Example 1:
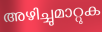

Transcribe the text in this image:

അഴിച്ചുമാറ്റുക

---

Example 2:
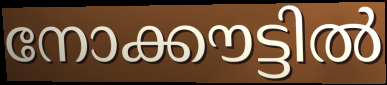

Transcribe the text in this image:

നോക്കൗട്ടിൽ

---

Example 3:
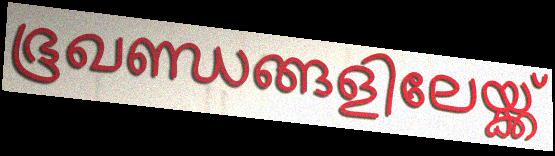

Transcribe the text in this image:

ഭൂഖണ്ഡങ്ങളിലേയ്ക്ക്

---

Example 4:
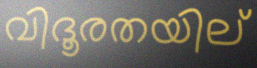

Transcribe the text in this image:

വിദൂരതയില്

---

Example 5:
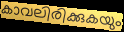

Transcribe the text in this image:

കാവലിരിക്കുകയും